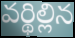
వర్థిల్లిన